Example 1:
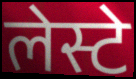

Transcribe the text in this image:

लेस्टे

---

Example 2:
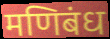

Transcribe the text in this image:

मणिबंध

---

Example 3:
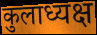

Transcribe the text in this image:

कुलाध्यक्ष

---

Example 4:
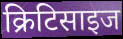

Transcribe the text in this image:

क्रिटिसाइज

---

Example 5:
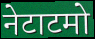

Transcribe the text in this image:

नेटाटमो